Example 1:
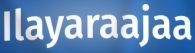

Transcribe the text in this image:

Ilayaraajaa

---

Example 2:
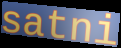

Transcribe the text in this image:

satni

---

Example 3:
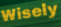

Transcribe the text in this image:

Wisely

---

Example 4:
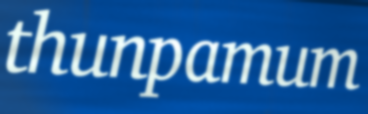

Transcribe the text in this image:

thunpamum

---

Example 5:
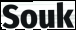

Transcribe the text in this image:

Souk